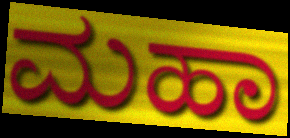
ಮಹಾ